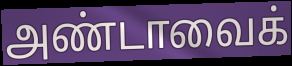
அண்டாவைக்